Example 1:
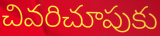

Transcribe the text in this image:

చివరిచూపుకు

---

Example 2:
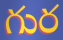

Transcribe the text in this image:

గుర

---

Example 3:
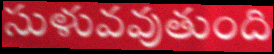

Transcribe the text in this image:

సుళువవుతుంది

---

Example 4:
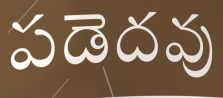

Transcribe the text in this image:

పడెదవు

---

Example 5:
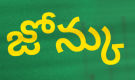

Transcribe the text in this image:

జోన్కు